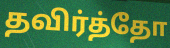
தவிர்த்தோ